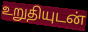
உறுதியுடன்